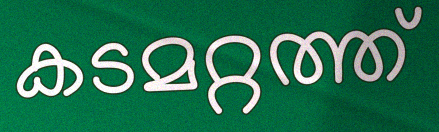
കടമറ്റത്ത്